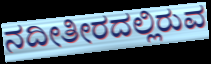
ನದೀತೀರದಲ್ಲಿರುವ